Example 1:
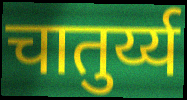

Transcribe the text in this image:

चातुर्य्य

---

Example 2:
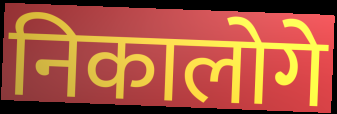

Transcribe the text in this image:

निकालोगे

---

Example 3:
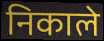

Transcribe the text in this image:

निकाले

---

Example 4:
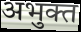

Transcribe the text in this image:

अभुक्त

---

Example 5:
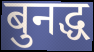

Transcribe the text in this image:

बुनद्ध